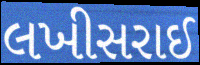
લખીસરાઈ